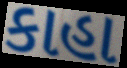
કાહા